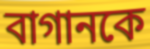
বাগানকে